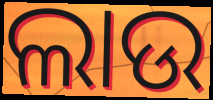
ଲାଉ